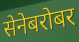
सेनेबरोबर